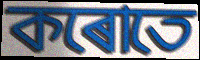
কৰোতে